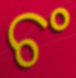
ଚଂ